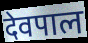
देवपाल